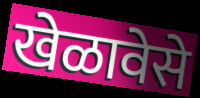
खेळावेसे